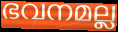
ഭവനമല്ല